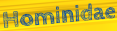
Hominidae